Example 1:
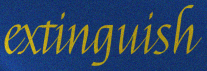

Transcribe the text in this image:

extinguish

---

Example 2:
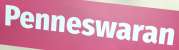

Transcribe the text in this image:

Penneswaran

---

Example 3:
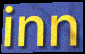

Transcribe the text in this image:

inn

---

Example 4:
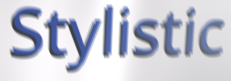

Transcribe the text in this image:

Stylistic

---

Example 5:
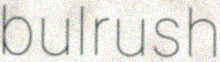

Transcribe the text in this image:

bulrush